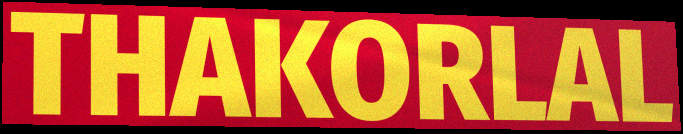
THAKORLAL